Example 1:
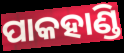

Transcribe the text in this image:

ପାକହାଣ୍ଡି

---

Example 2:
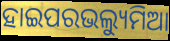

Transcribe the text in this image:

ହାଇପରଭଲ୍ୟୁମିଆ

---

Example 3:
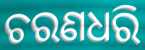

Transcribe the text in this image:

ଚରଣଧରି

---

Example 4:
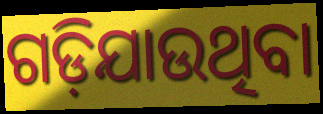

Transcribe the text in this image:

ଗଡ଼ିଯାଉଥିବା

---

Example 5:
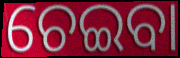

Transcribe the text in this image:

ଚେଇବା